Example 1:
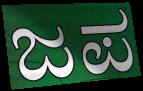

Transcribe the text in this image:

ಜಪ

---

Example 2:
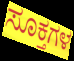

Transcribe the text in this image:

ಸೂಕ್ತಗಳ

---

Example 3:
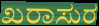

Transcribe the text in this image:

ಖರಾಸುರ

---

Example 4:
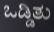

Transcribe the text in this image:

ಒಡ್ಡಿತು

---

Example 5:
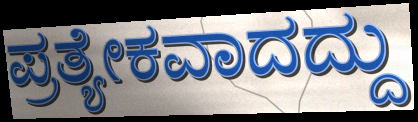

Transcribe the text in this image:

ಪ್ರತ್ಯೇಕವಾದದ್ದು